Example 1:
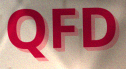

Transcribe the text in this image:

QFD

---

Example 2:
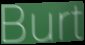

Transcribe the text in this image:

Burt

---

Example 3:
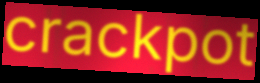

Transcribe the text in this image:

crackpot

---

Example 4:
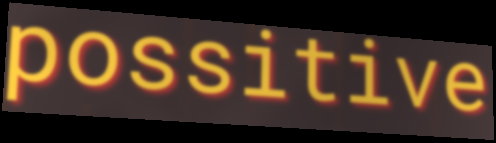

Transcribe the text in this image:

possitive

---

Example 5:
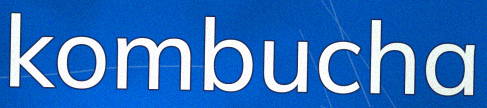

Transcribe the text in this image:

kombucha